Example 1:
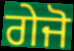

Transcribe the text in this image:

ਗੇਜੋ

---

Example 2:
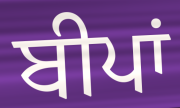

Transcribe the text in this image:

ਬੀਪਾਂ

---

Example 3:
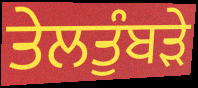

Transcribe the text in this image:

ਤੇਲਤੁੰਬੜੇ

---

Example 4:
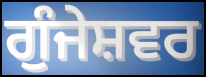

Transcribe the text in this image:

ਗੁੰਜੇਸ਼ਵਰ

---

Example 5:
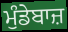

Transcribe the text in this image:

ਮੁੰਡੇਬਾਜ਼